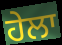
ਹੇਲਾ